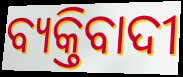
ବ୍ୟକ୍ତିବାଦୀ